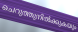
ചെറുത്തുനിൽക്കുകയും